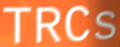
TRCs